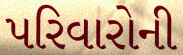
પરિવારોની